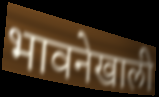
भावनेखाली